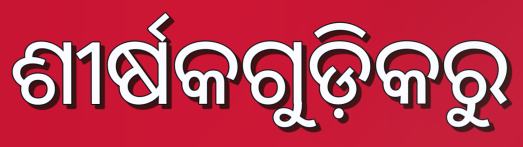
ଶୀର୍ଷକଗୁଡ଼ିକରୁ